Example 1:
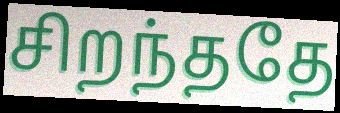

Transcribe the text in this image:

சிறந்ததே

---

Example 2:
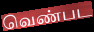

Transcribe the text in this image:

வெண்பட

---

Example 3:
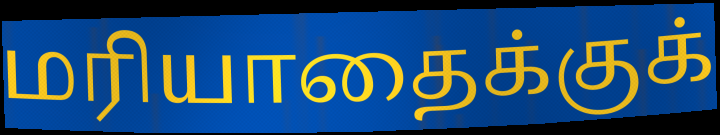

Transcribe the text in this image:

மரியாதைக்குக்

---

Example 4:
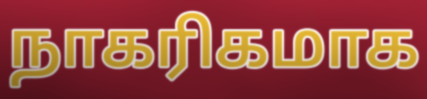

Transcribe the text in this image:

நாகரிகமாக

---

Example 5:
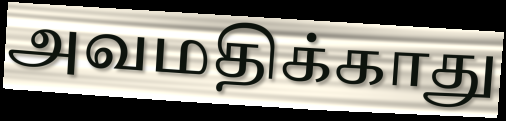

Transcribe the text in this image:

அவமதிக்காது